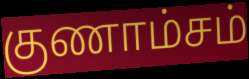
குணாம்சம்